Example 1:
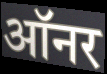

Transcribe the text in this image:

ऑनर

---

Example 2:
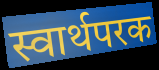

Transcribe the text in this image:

स्वार्थपरक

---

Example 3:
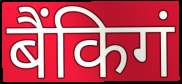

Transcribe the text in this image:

बैंकिगं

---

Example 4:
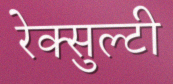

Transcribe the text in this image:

रेक्सुल्टी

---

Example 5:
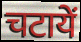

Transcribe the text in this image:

चटायें